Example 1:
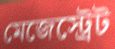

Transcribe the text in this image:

মেজেস্ট্রেট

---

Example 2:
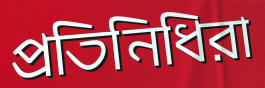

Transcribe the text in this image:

প্রতিনিধিরা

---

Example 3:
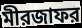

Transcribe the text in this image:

মীরজাফর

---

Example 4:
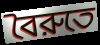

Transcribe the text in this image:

বৈরুতে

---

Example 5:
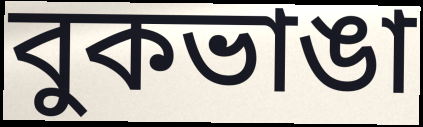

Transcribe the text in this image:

বুকভাঙা